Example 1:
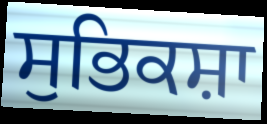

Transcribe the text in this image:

ਸੁਭਿਕਸ਼ਾ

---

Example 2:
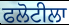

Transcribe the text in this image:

ਫਲੋਟੀਲਾ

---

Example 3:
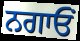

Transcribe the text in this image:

ਨਗਾਓਂ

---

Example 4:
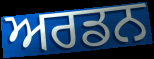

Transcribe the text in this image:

ਅਰਡਨ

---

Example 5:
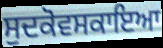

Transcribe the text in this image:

ਸੁਦਕੋਵਸਕਾਇਆ